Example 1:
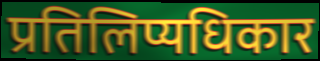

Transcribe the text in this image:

प्रतिलिप्यधिकार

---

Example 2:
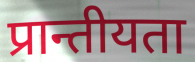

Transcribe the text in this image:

प्रान्तीयता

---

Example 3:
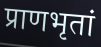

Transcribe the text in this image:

प्राणभृतां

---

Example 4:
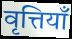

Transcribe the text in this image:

वृत्तियाँ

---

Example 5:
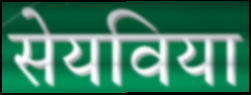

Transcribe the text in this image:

सेयविया